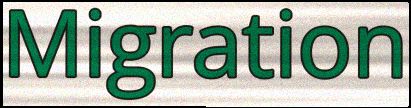
Migration